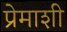
प्रेमाशी